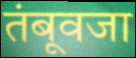
तंबूवजा